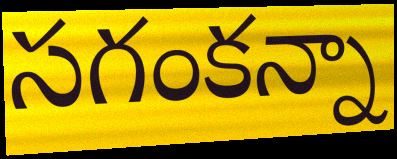
సగంకన్నా